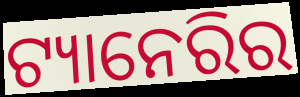
ଟ୍ୟାନେରିର